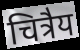
चित्रैय